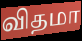
விதமா